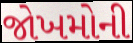
જોખમોની